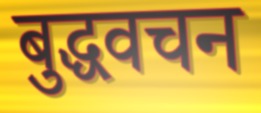
बुद्धवचन